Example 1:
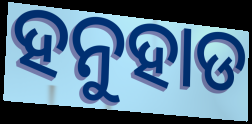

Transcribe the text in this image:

ହନୁହାଡ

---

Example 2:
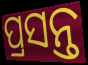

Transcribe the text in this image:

ପ୍ରସନ୍ତ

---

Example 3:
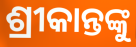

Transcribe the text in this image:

ଶ୍ରୀକାନ୍ତଙ୍କୁ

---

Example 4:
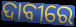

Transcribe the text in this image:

ଦାବୀରେ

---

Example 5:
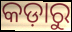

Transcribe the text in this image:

କଡ଼ାରୁ